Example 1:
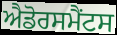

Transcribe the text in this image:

ਐਡੋਰਸਮੈਂਟਸ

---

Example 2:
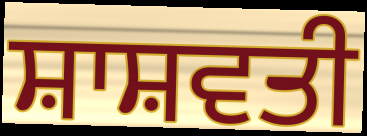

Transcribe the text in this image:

ਸ਼ਾਸ਼ਵਤੀ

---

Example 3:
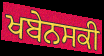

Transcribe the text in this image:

ਖਬੇਨਸਕੀ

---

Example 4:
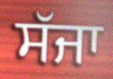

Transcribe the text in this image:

ਸੱਜਾ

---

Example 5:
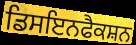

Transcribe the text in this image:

ਡਿਸਇਨਫੈਕਸ਼ਨ